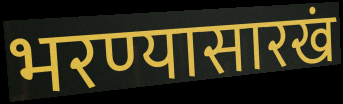
भरण्यासारखं